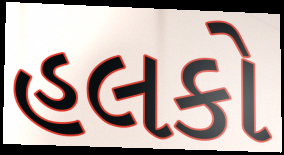
હલકો